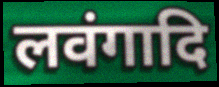
लवंगादि